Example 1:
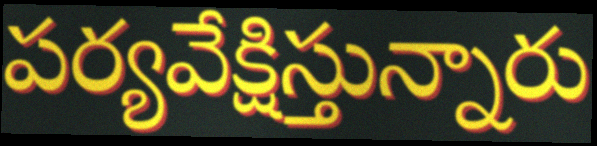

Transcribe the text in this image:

పర్యవేక్షిస్తున్నారు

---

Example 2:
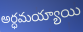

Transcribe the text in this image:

అర్ధమయ్యాయి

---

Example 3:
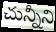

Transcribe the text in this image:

చున్నీని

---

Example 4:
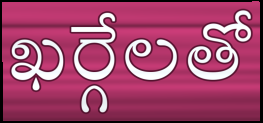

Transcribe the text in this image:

ఖర్గేలతో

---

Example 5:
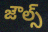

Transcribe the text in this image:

జౌల్స్